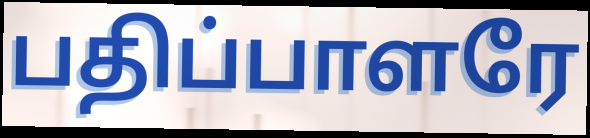
பதிப்பாளரே